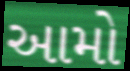
આમો